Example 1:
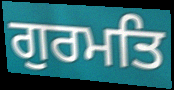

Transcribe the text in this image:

ਗੁਰਮਤਿ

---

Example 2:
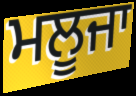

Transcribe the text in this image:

ਮਲੂਜਾ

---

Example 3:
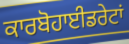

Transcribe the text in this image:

ਕਾਰਬੋਹਾਈਡਰੇਟਾਂ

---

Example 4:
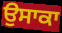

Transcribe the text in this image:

ਉਸਾਕਾ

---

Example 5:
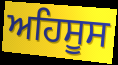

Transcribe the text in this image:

ਅਹਿਸੂਸ